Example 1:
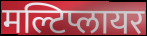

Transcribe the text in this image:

मल्टिप्लायर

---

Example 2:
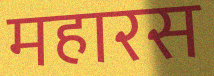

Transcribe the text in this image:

महारस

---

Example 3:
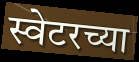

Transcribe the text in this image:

स्वेटरच्या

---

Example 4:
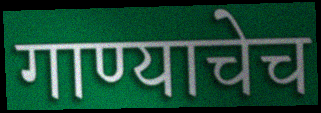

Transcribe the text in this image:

गाण्याचेच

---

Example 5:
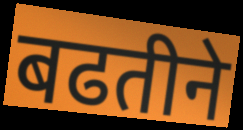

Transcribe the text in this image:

बढतीने